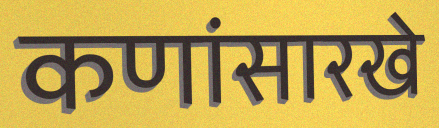
कणांसारखे